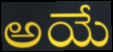
అయే